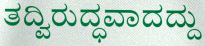
ತದ್ವಿರುದ್ಧವಾದದ್ದು